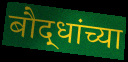
बौद्धांच्या